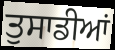
ਤੁਸਾਡੀਆਂ